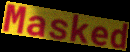
Masked